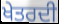
ਖੇਤਰਦੀ